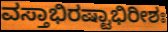
ವಸ್ತಾಭಿರಷ್ಟಾಭಿರೀಶಃ